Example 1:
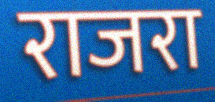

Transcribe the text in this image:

राजरा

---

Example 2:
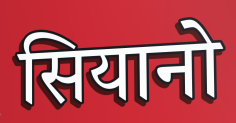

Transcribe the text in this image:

सियानो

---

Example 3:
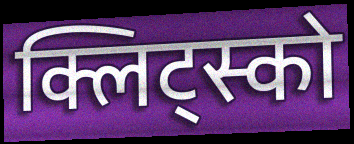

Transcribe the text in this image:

क्लिट्स्को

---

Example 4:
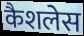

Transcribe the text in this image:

कैशलेस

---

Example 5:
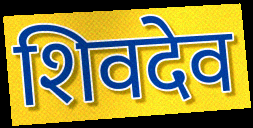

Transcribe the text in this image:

शिवदेव